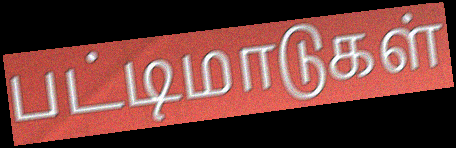
பட்டிமாடுகள்